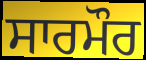
ਸਾਰਮੌਰ